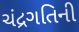
ચંદ્રગતિની